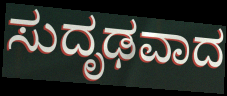
ಸುದೃಢವಾದ